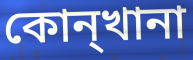
কোন্খানা